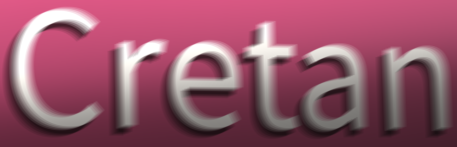
Cretan